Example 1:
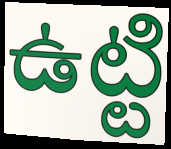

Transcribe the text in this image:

ఉట్టి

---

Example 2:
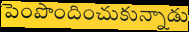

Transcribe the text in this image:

పెంపొందించుకున్నాడు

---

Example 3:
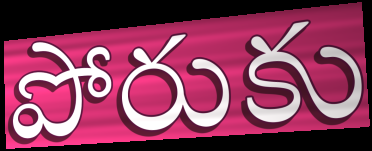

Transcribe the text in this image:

పోరుకు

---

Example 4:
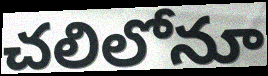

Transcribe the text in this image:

చలిలోనూ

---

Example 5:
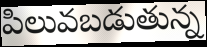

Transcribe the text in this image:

పిలువబడుతున్న